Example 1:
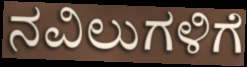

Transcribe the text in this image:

ನವಿಲುಗಳಿಗೆ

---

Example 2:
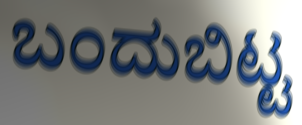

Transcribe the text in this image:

ಬಂದುಬಿಟ್ಟ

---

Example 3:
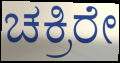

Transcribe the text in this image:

ಚಕ್ರಿರೇ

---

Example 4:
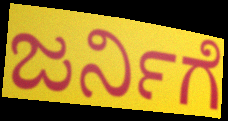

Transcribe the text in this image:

ಜರ್ನಿಗೆ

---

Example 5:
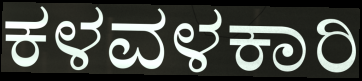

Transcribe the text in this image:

ಕಳವಳಕಾರಿ